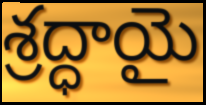
శ్రద్ధాయై